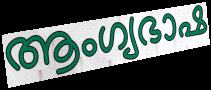
ആംഗ്യഭാഷ